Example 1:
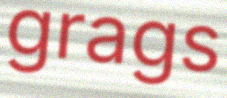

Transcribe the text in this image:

grags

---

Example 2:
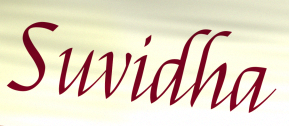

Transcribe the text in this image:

Suvidha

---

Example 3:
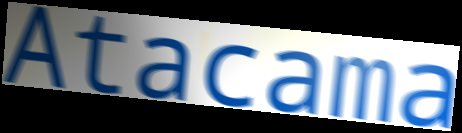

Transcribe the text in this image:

Atacama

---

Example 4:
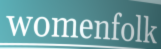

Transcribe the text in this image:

womenfolk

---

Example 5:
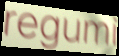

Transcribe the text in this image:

regumi